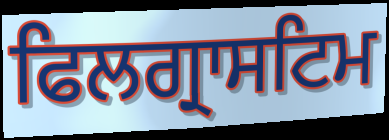
ਫਿਲਗ੍ਰਾਸਟਿਮ